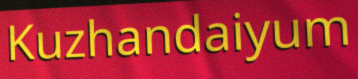
Kuzhandaiyum